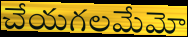
చేయగలమేమో